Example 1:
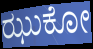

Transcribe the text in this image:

ಝುಕೋ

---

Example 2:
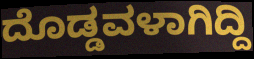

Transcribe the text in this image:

ದೊಡ್ಡವಳಾಗಿದ್ದಿ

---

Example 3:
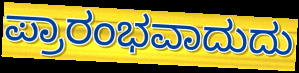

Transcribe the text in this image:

ಪ್ರಾರಂಭವಾದುದು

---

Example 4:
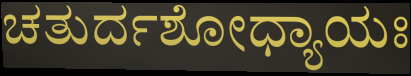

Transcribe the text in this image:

ಚತುರ್ದಶೋಧ್ಯಾಯಃ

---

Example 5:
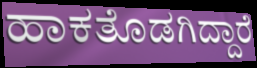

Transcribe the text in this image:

ಹಾಕತೊಡಗಿದ್ದಾರೆ